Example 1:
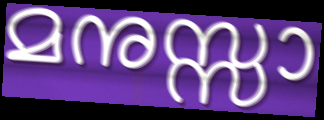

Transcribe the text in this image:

മനുസ്സാ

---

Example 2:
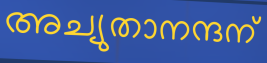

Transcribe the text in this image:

അച്യുതാനന്ദന്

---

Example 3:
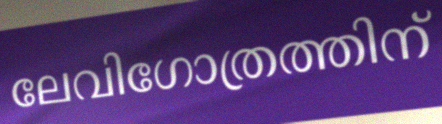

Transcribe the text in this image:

ലേവിഗോത്രത്തിന്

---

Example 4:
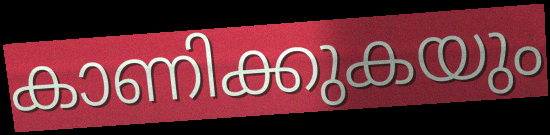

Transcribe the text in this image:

കാണിക്കുകയും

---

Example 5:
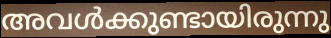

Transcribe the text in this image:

അവൾക്കുണ്ടായിരുന്നു